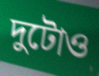
দুটোও